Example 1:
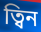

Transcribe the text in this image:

ত্বিন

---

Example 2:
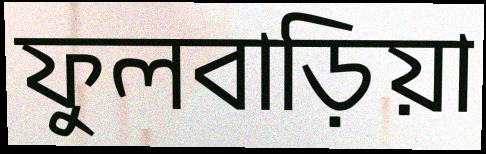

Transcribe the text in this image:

ফুলবাড়িয়া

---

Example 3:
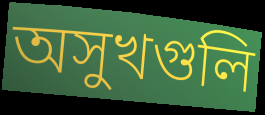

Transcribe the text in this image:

অসুখগুলি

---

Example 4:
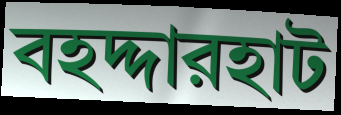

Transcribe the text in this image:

বহদ্দারহাট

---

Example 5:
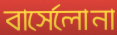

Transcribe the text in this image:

বার্সেলোনা